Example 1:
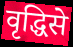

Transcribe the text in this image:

वृद्धिसे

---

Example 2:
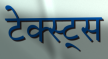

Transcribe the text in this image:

टेक्स्ट्स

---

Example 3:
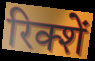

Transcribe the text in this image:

रिक्शें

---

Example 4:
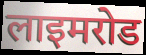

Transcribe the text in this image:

लाइमरोड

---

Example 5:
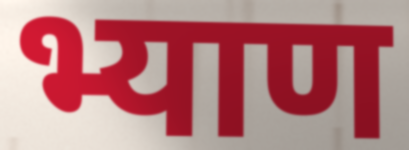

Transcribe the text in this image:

भ्याण